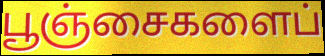
பூஞ்சைகளைப்